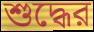
শুদ্ধের